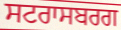
ਸਟਰਾਸਬਰਗ